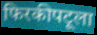
फिरकीपटूला